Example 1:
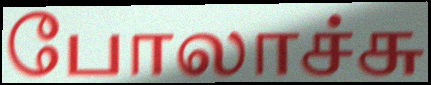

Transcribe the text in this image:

போலாச்சு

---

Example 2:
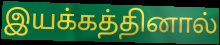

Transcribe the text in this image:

இயக்கத்தினால்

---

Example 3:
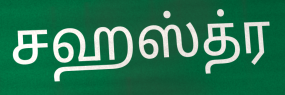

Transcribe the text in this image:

சஹஸ்த்ர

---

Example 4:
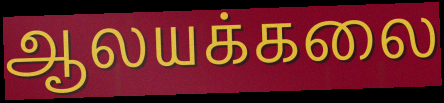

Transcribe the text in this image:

ஆலயக்கலை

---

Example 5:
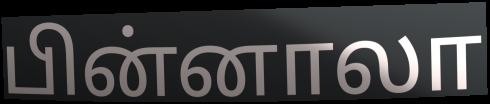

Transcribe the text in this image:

பின்னாலா